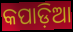
କପାଡ଼ିଆ